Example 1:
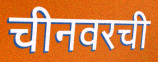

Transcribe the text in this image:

चीनवरची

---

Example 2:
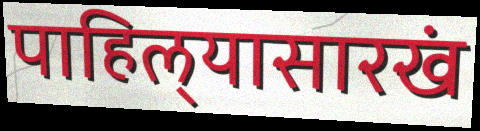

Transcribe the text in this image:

पाहिल्यासारखं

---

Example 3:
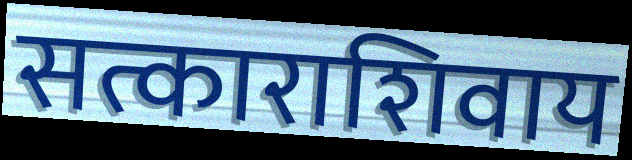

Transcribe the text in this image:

सत्काराशिवाय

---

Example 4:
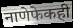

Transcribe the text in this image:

नाणेफेकही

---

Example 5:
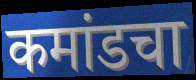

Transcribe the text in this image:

कमांडचा